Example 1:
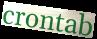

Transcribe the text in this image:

crontab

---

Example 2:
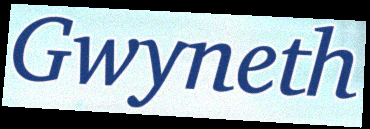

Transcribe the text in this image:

Gwyneth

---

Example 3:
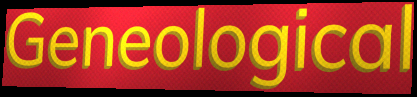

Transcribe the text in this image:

Geneological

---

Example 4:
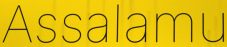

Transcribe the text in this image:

Assalamu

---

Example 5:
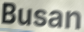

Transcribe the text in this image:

Busan